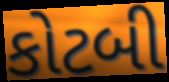
કોટબી